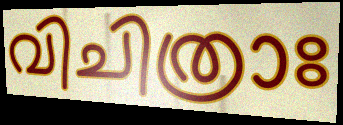
വിചിത്രാഃ